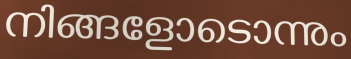
നിങ്ങളോടൊന്നും